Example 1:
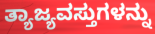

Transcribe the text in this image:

ತ್ಯಾಜ್ಯವಸ್ತುಗಳನ್ನು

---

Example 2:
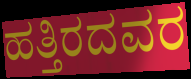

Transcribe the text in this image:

ಹತ್ತಿರದವರ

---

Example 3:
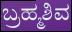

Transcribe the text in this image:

ಬ್ರಹ್ಮಶಿವ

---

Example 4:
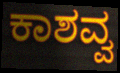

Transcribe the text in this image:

ಕಾಶವ್ವ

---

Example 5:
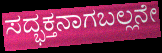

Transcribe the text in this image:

ಸದ್ಭಕ್ತನಾಗಬಲ್ಲನೇ